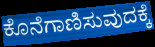
ಕೊನೆಗಾಣಿಸುವುದಕ್ಕೆ